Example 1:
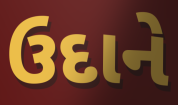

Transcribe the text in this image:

ઉદાને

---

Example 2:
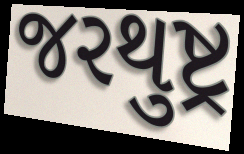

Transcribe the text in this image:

જરથુષ્ટ્ર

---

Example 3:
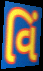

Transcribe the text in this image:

વિં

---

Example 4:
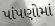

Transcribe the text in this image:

પાંપણોમાં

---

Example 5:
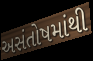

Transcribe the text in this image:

અસંતોષમાંથી